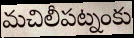
మచిలీపట్నంకు